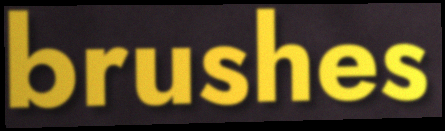
brushes